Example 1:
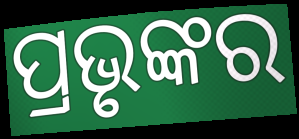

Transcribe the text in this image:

ପ୍ରଭୃଙ୍କର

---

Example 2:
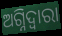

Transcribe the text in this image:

ଅଗ୍ନିଦ୍ଵାରା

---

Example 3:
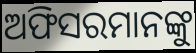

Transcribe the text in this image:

ଅଫିସରମାନଙ୍କୁ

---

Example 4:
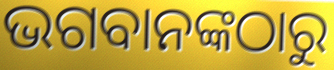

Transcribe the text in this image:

ଭଗବାନଙ୍କଠାରୁ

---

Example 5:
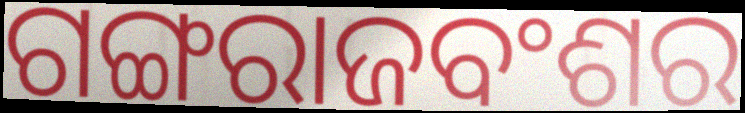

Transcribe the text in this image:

ଗଙ୍ଗରାଜବଂଶର